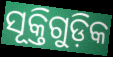
ସୂକ୍ତିଗୁଡ଼ିକ